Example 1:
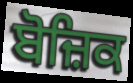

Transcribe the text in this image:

ਬੋਜ਼ਿਕ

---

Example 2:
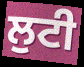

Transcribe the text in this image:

ਲੁਟੀ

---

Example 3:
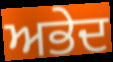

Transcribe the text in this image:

ਅਭੇਦ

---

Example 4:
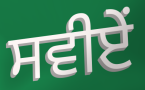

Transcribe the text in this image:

ਸਵੀਏਂ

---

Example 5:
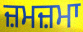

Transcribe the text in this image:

ਜ਼ਮਜ਼ਮਾ